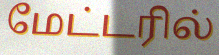
மேட்டரில்